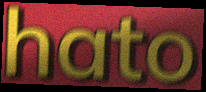
hato